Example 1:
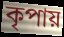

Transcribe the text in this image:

কৃপায়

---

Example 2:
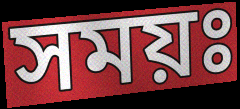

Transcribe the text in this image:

সময়ঃ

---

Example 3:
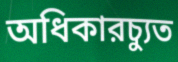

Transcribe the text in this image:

অধিকারচ্যুত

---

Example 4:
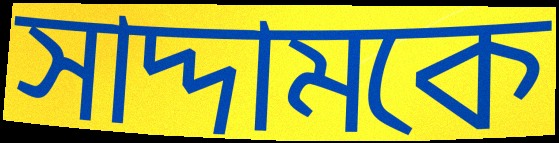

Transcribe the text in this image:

সাদ্দামকে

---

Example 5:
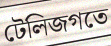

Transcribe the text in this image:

টেলিজগতে